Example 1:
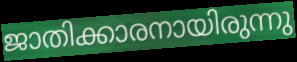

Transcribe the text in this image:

ജാതിക്കാരനായിരുന്നു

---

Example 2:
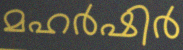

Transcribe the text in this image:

മഹർഷിർ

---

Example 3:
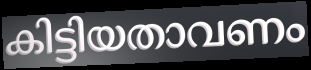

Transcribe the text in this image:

കിട്ടിയതാവണം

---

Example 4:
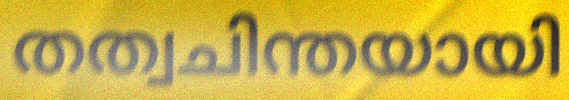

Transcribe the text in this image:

തത്വചിന്തയായി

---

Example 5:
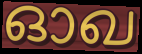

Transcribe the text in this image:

ഓഖ